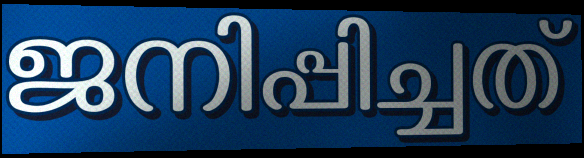
ജനിപ്പിച്ചത്